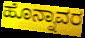
ಹೊನ್ನಾವರ